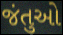
જંતુઓ